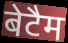
बेटैम